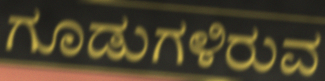
ಗೂಡುಗಳಿರುವ